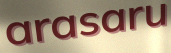
arasaru